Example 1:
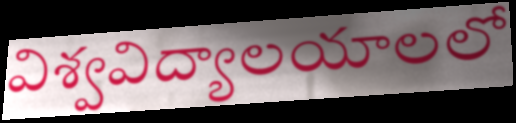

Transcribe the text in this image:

విశ్వవిద్యాలయాలలో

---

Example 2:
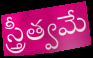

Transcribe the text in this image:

స్త్రీత్వమే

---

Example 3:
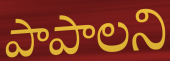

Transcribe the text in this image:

పాపాలని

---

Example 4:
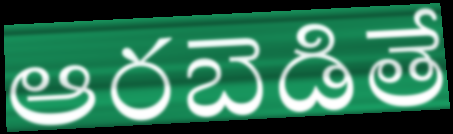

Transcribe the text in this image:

ఆరబెడితే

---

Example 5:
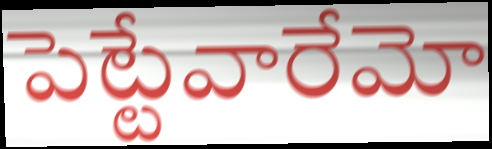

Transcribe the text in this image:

పెట్టేవారేమో